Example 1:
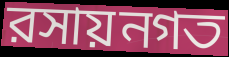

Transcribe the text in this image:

রসায়নগত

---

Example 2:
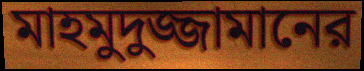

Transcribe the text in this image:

মাহমুদুজ্জামানের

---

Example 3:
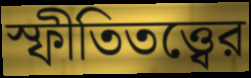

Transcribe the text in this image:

স্ফীতিতত্ত্বের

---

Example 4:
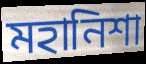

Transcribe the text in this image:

মহানিশা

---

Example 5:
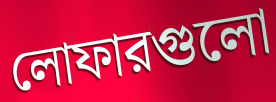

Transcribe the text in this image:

লোফারগুলো